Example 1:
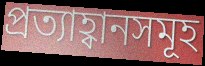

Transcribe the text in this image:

প্ৰত্যাহ্বানসমূহ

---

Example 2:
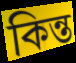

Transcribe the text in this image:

কিন্ত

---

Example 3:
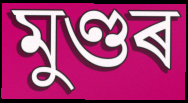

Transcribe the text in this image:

মুণ্ডৰ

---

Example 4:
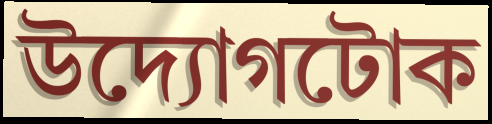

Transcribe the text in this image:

উদ্যোগটোক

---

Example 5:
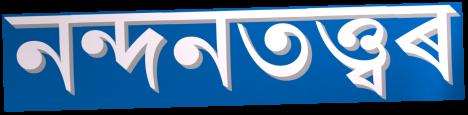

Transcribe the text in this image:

নন্দনতত্ত্বৰ